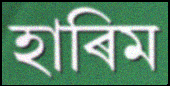
হাৰিম